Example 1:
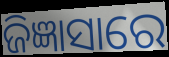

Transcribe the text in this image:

ଜିଜ୍ଞାସାରେ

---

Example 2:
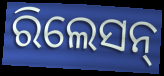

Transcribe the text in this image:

ରିଲେସନ୍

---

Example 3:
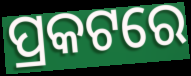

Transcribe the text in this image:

ପ୍ରକଟରେ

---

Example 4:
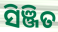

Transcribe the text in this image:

ସିଞ୍ଜିତ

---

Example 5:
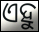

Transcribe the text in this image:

ଏହୁ